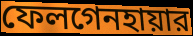
ফেলগেনহায়ার